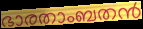
ഭാരതാംബതൻ